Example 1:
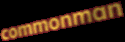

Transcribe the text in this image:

commonman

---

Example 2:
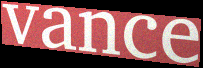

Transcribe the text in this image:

vance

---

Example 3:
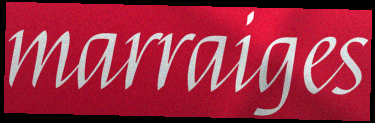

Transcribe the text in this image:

marraiges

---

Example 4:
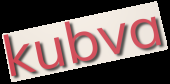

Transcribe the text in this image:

kubva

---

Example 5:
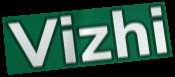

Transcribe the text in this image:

Vizhi